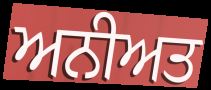
ਅਨੀਅਤ